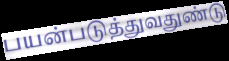
பயன்படுத்துவதுண்டு